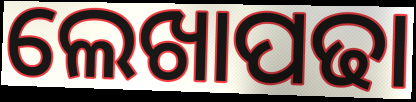
ଲେଖାପଢା